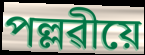
পল্লৱীয়ে